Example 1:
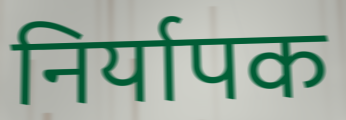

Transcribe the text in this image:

निर्यापक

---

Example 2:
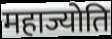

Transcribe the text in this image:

महाज्योति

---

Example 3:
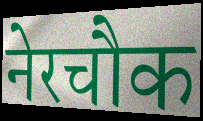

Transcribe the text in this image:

नेरचौक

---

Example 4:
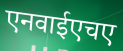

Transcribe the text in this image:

एनवाईएचए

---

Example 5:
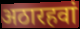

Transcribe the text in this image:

अठारहवां